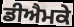
ਡੀਐਮਕੇ